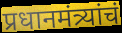
प्रधानमंत्र्यांचं